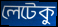
লেটেকু